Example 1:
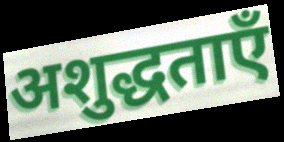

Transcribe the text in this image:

अशुद्धताएँ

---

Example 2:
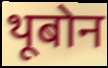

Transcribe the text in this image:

थूबोन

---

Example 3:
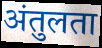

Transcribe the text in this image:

अंतुलता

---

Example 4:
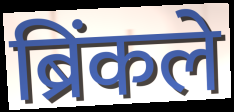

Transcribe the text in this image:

ब्रिंकले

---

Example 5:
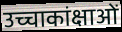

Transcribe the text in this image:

उच्चाकांक्षाओं